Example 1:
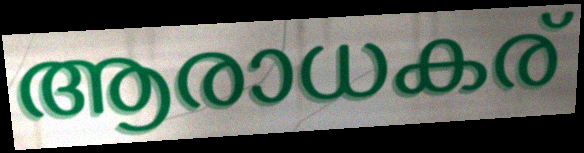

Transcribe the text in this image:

ആരാധകര്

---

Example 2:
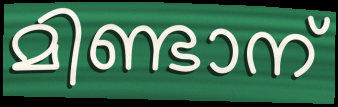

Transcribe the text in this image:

മിണ്ടാന്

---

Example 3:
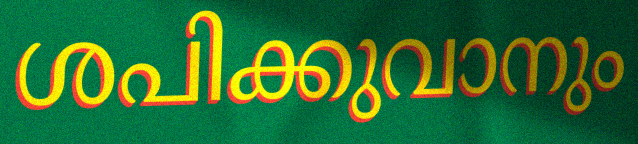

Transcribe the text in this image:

ശപിക്കുവാനും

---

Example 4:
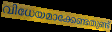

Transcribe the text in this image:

വിധേയമാക്കേണ്ടതുണ്ട്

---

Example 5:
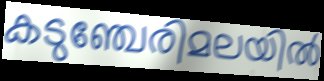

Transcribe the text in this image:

കടുഞ്ചേരിമലയിൽ